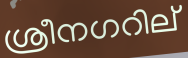
ശ്രീനഗറില്